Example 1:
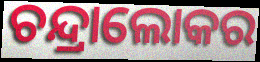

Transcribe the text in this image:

ଚନ୍ଦ୍ରାଲୋକର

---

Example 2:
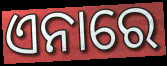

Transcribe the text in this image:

ଏନାରେ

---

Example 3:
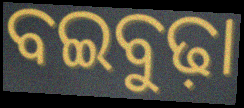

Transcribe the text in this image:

ବଇବୁଢ଼ା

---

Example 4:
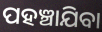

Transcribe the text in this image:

ପହଞ୍ଚାଯିବା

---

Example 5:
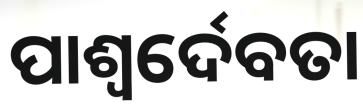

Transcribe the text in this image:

ପାଶ୍ୱର୍ଦେବତା